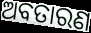
ଅବତାରଣ